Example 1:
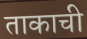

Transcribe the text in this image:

ताकाची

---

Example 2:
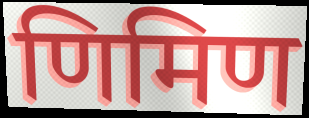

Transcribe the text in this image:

णिमिण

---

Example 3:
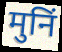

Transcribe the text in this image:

मुनिं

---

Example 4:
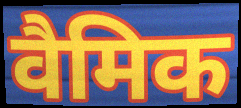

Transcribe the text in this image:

वैमिक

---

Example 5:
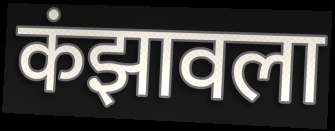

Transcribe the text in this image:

कंझावला